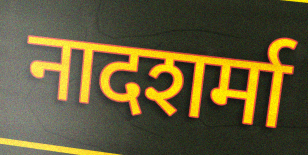
नादशर्मा